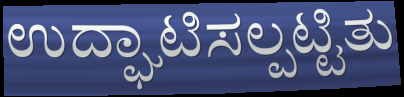
ಉದ್ಘಾಟಿಸಲ್ಪಟ್ಟಿತು